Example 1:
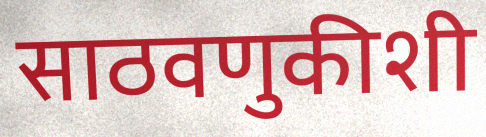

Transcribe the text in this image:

साठवणुकीशी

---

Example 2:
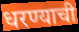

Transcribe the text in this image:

धरण्याची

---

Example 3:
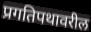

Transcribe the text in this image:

प्रगतिपथावरील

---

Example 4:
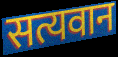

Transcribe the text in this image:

सत्यवान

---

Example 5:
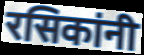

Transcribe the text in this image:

रसिकांनी